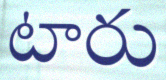
టారు